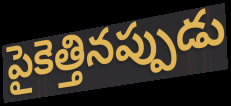
పైకెత్తినప్పుడు